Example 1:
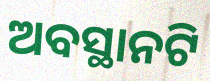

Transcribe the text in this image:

ଅବସ୍ଥାନଟି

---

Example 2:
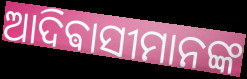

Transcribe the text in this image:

ଆଦିଵାସୀମାନଙ୍କ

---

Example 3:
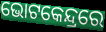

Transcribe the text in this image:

ଭୋଟକେନ୍ଦ୍ରରେ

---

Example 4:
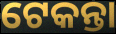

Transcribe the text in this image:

ଟେକନ୍ତା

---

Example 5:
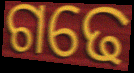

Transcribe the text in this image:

ଗଢେ